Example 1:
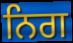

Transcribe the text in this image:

ਨਿਗ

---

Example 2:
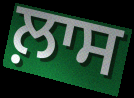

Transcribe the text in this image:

ਲ਼ਾਸ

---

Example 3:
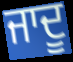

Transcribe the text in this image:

ਜਾਦੂ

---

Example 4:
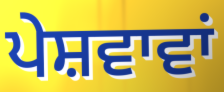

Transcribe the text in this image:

ਪੇਸ਼ਵਾਵਾਂ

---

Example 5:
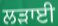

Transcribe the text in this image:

ਲੜਾਈ